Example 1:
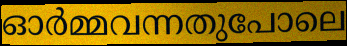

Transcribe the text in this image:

ഓർമ്മവന്നതുപോലെ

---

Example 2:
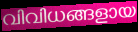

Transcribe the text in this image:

വിവിധങ്ങളായ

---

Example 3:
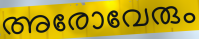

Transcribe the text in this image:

അരോവേരും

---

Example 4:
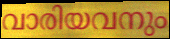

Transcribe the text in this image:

വാരിയവനും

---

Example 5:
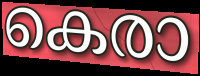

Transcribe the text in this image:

കെരാ